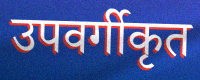
उपवर्गीकृत